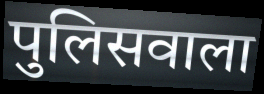
पुलिसवाला